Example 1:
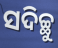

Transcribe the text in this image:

ସଦିଚ୍ଛୁ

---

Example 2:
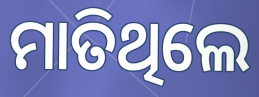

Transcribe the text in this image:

ମାତିଥିଲେ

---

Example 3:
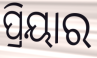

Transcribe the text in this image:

ପ୍ରିୟାର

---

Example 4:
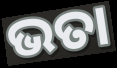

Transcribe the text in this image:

ଭତା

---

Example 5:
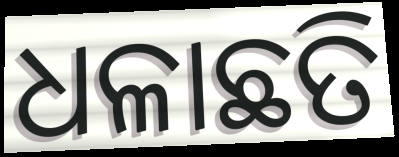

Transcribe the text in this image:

ଧଳାଛତି